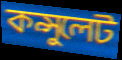
কন্সুলেট